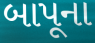
બાપૂના